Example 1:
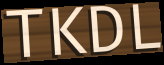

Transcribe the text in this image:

TKDL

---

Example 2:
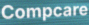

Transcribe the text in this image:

Compcare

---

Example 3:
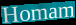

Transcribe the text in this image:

Homam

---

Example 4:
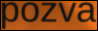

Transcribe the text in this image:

pozva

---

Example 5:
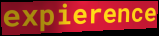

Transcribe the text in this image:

expierence